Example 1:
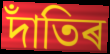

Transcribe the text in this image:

দাঁতিৰ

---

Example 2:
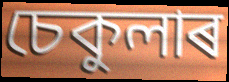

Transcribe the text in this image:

চেকুলাৰ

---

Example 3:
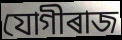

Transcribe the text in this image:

যোগীৰাজ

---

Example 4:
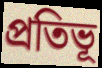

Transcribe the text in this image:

প্ৰতিভূ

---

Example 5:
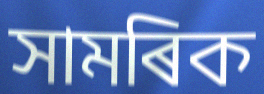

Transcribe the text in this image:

সামৰিক